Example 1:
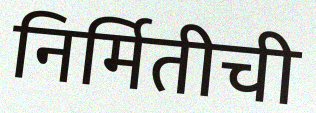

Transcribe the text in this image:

निर्मितीची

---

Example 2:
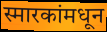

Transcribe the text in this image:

स्मारकांमधून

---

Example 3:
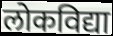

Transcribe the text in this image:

लोकविद्या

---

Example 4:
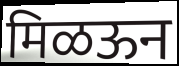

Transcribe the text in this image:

मिळऊन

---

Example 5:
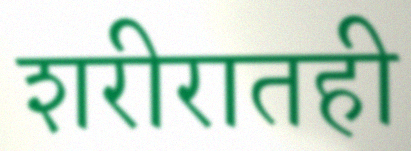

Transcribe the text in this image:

शरीरातही